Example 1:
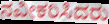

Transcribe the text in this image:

ನವೀಕರಿಸಿದರು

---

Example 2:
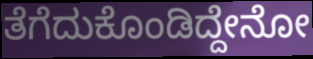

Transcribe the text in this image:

ತೆಗೆದುಕೊಂಡಿದ್ದೇನೋ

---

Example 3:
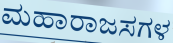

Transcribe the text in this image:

ಮಹಾರಾಜಸಗಳ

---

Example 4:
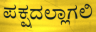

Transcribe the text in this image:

ಪಕ್ಷದಲ್ಲಾಗಲಿ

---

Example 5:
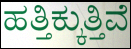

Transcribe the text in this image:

ಹತ್ತಿಕ್ಕುತ್ತಿವೆ